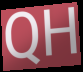
QH